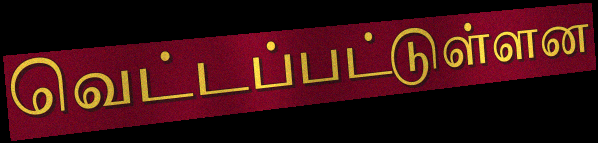
வெட்டப்பட்டுள்ளன